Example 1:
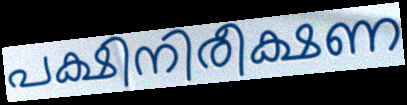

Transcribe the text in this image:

പക്ഷിനിരീക്ഷണ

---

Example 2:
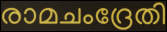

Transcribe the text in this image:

രാമചംദ്രേതി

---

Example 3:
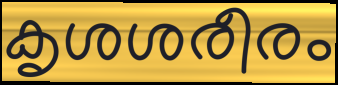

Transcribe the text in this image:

കൃശശരീരം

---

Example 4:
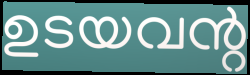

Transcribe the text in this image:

ഉടയവന്റ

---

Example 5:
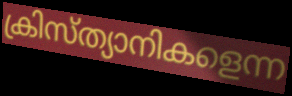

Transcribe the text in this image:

ക്രിസ്ത്യാനികളെന്ന